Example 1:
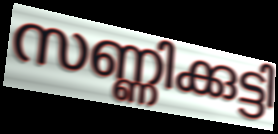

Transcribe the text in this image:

സണ്ണിക്കുട്ടി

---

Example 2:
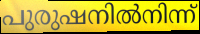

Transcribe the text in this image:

പുരുഷനിൽനിന്ന്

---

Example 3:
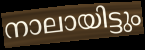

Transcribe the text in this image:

നാലായിട്ടും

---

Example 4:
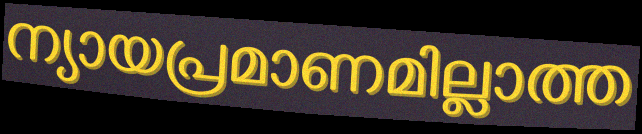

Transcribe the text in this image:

ന്യായപ്രമാണമില്ലാത്ത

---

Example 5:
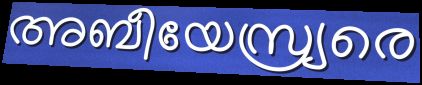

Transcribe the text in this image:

അബീയേസ്ര്യരെ